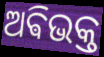
ଅଵିଭକ୍ତ